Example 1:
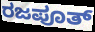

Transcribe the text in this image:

ರಜಪೂತ್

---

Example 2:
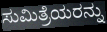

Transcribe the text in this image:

ಸುಮಿತ್ರೆಯರನ್ನು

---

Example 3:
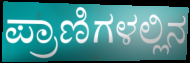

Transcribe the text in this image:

ಪ್ರಾಣಿಗಳಲ್ಲಿನ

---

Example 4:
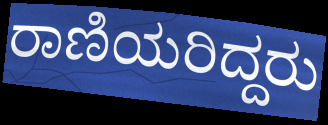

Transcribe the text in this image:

ರಾಣಿಯರಿದ್ದರು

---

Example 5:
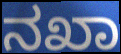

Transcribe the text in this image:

ನಖಾ